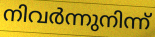
നിവർന്നുനിന്ന്